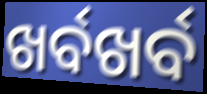
ଖର୍ବଖର୍ବ